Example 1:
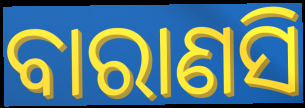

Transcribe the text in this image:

ବାରାଣସି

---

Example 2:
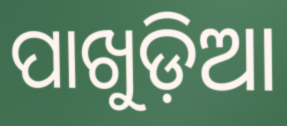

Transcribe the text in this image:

ପାଖୁଡ଼ିଆ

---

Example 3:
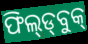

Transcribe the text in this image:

ଫିଲ୍‍ଡ୍‍ବୁକ୍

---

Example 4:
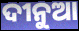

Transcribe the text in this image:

ଦୀନୁଆ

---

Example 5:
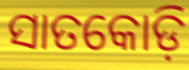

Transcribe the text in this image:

ସାତକୋଡ଼ି